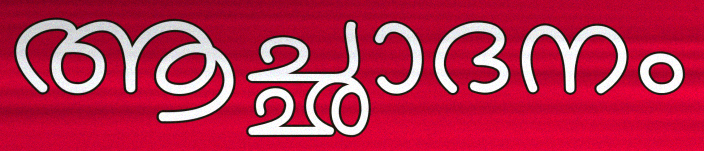
ആച്ഛാദനം